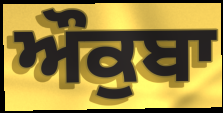
ਔਕੁਬਾ